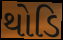
થોડિ